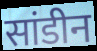
सांडीन